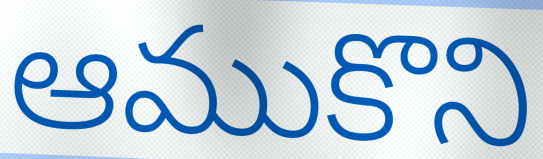
ఆముకొని